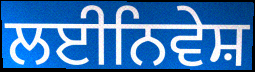
ਲਈਨਿਵੇਸ਼